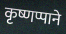
कृष्णप्पाने